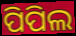
ପିପିଲ